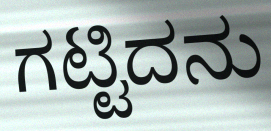
ಗಟ್ಟಿದನು